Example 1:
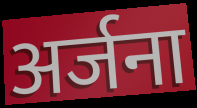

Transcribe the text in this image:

अर्जना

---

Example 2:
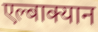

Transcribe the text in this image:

एल्बाक्यान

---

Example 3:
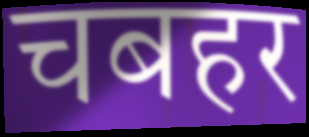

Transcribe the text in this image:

चबहर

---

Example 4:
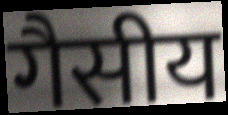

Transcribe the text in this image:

गैसीय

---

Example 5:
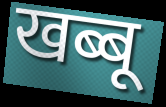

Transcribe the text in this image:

खब्बू